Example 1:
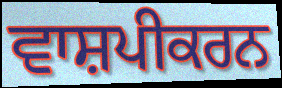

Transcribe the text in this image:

ਵਾਸ਼ਪੀਕਰਨ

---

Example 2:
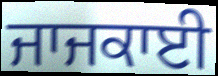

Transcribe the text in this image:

ਜਾਜਕਾਈ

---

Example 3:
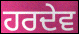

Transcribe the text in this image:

ਹਰਦੇਵ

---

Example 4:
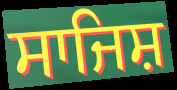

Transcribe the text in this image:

ਸਾਜਿਸ਼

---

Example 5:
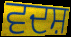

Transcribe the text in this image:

ਵਦਸ਼